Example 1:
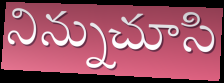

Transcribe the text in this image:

నిన్నుచూసి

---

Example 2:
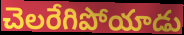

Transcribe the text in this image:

చెలరేగిపోయాడు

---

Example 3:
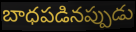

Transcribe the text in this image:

బాధపడినప్పుడు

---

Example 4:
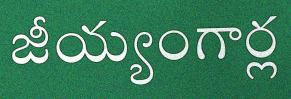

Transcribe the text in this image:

జీయ్యంగార్ల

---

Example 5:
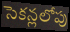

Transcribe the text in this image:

సెకన్లలోపు